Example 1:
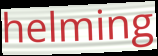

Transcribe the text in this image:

helming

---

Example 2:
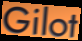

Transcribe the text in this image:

Gilot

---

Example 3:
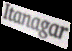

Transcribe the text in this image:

Itanagar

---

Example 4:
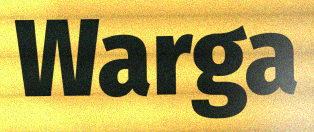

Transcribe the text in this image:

Warga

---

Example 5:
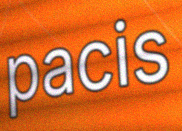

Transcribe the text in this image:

pacis